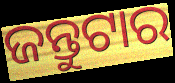
ଜନ୍ତୁଟାର